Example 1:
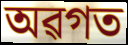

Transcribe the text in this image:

অৱগত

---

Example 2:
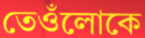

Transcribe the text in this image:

তেওঁলোকে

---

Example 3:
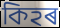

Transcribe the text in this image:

কিহৰ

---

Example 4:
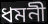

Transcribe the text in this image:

ধমনী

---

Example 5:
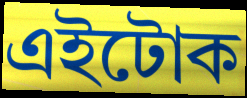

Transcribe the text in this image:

এইটোক